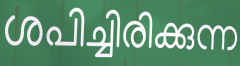
ശപിച്ചിരിക്കുന്ന